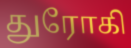
துரோகி